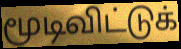
மூடிவிட்டுக்